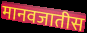
मानवजातीस